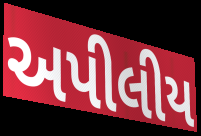
અપીલીય